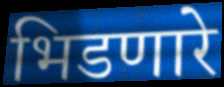
भिडणारे